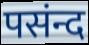
पसंन्द